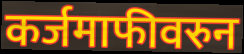
कर्जमाफीवरुन